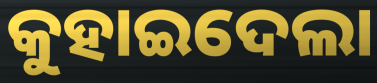
କୁହାଇଦେଲା